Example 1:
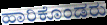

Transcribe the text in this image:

ಹಾರಿಕೊಂಡರು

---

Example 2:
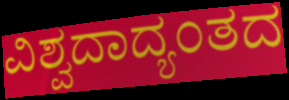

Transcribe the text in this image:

ವಿಶ್ವದಾದ್ಯಂತದ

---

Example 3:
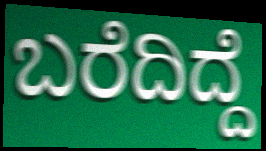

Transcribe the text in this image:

ಬರೆದಿದ್ದೆ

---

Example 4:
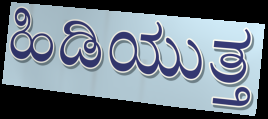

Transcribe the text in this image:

ಹಿಡಿಯುತ್ತ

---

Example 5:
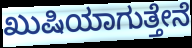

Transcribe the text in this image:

ಖುಷಿಯಾಗುತ್ತೇನೆ